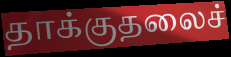
தாக்குதலைச்